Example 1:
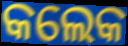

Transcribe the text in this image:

କଲେକ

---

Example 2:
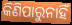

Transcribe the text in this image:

କିଣିପାରୁନାହିଁ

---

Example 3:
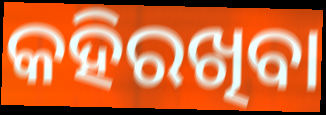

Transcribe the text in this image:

କହିରଖିବା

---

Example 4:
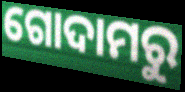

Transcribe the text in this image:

ଗୋଦାମରୁ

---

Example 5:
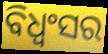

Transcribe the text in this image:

ବିଧ୍ୱଂସର